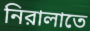
নিরালাতে